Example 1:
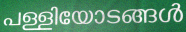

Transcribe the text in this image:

പള്ളിയോടങ്ങൾ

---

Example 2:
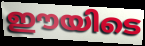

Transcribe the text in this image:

ഈയിടെ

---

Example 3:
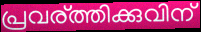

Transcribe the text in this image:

പ്രവര്ത്തിക്കുവിന്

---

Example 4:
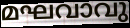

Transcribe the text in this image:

മഘവാവു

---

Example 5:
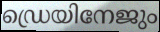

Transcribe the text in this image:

ഡ്രെയിനേജും